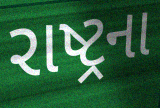
રાષ્ટ્રના